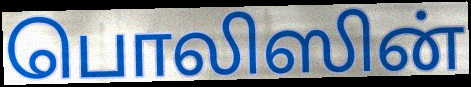
பொலிஸின்